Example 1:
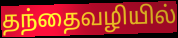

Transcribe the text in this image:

தந்தைவழியில்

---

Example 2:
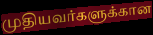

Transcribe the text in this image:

முதியவர்களுக்கான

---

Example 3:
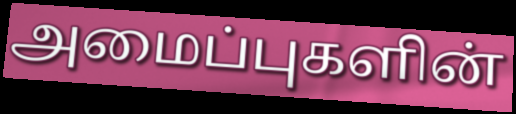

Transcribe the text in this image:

அமைப்புகளின்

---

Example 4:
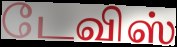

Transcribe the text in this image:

டேவிஸ்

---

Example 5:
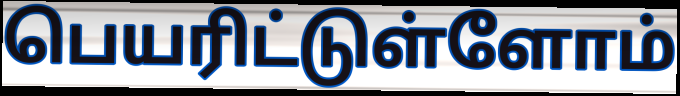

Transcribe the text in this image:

பெயரிட்டுள்ளோம்